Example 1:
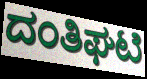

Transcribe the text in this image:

ದಂತಿಘಟೆ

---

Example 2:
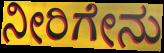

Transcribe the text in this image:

ನೀರಿಗೇನು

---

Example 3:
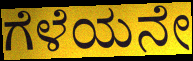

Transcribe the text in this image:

ಗೆಳೆಯನೇ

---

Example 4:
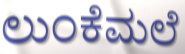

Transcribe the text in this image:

ಲುಂಕೆಮಲೆ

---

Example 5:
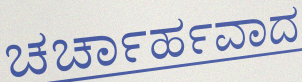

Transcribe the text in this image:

ಚರ್ಚಾರ್ಹವಾದ